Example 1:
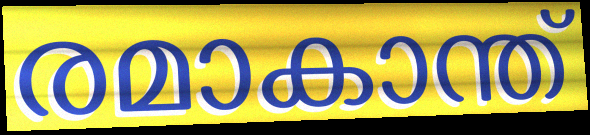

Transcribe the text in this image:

രമാകാന്ത്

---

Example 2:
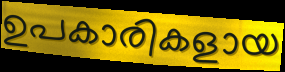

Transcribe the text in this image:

ഉപകാരികളായ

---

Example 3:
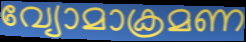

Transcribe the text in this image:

വ്യോമാക്രമണ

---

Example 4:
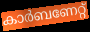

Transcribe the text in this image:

കാർബണേറ്റ്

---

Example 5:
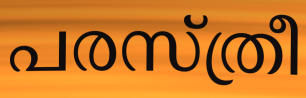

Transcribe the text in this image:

പരസ്ത്രീ